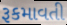
રૂકમાવતી